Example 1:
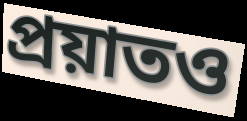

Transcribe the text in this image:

প্রয়াতও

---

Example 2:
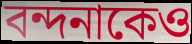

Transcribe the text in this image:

বন্দনাকেও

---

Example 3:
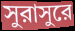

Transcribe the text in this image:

সুরাসুরে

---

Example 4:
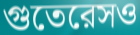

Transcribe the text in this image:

গুতেরেসও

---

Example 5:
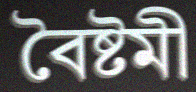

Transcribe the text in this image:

বৈষ্টমী